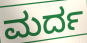
ಮರ್ದ